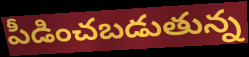
పీడించబడుతున్న